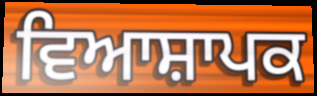
ਵਿਆਸ਼ਾਪਕ